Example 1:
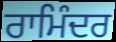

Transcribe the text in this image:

ਰਾਮਿੰਦਰ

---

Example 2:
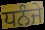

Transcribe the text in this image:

ਧਨੰਜੇ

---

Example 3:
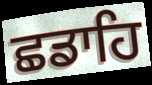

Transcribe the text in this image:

ਛਡਾਹਿ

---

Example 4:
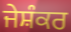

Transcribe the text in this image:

ਜੇਸ਼ੰਕਰ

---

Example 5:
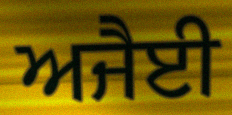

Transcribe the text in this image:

ਅਜੈਈ